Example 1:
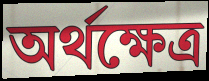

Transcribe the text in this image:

অৰ্থক্ষেত্ৰ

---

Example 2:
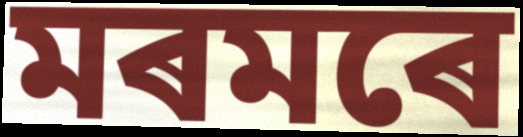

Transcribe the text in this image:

মৰমৰে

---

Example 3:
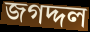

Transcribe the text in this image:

জগদ্দল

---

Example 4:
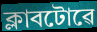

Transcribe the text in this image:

ক্লাবটোৱে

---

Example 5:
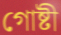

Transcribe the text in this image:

গোষ্টী